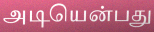
அடியென்பது